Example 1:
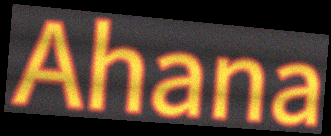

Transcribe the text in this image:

Ahana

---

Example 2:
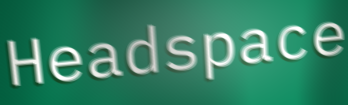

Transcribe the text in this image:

Headspace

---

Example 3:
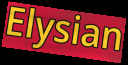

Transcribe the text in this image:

Elysian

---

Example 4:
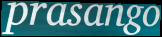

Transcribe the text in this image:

prasango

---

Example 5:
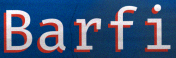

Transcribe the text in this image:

Barfi